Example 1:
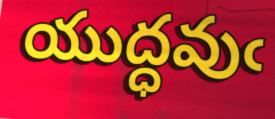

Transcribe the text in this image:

యుద్ధవుఁ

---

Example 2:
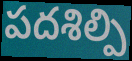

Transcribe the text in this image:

పదశిల్పి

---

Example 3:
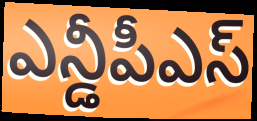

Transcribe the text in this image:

ఎన్డీపీఎస్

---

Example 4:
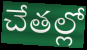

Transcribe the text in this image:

చేతల్లో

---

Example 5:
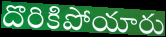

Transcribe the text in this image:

దొరికిపోయారు